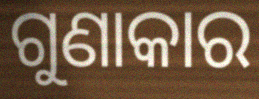
ଗୁଣାକାର